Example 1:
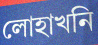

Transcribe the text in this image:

লোহাখনি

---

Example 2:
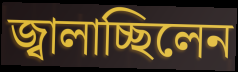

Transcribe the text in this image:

জ্বালাচ্ছিলেন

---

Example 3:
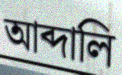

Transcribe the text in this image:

আব্দালি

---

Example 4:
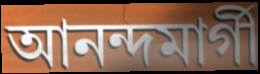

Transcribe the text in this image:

আনন্দমার্গী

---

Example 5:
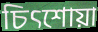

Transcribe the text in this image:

চিৎশোয়া